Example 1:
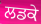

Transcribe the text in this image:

ਲਡਕੇ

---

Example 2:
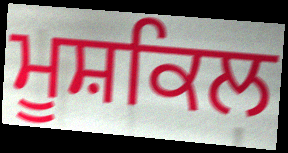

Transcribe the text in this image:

ਮੂਸ਼ਕਿਲ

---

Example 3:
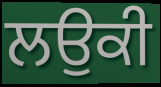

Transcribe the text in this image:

ਲਉਕੀ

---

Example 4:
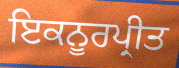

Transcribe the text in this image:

ਇਕਨੂਰਪ੍ਰੀਤ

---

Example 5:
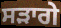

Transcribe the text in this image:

ਸੜਾਗੇ